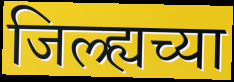
जिल्ह्यच्या